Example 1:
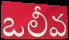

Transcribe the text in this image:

ఒలీవ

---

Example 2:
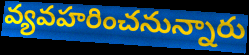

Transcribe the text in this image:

వ్యవహరించనున్నారు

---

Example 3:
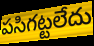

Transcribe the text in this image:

పసిగట్టలేదు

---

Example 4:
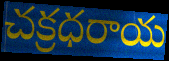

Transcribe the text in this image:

చక్రధరాయ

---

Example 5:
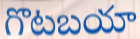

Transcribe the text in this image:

గొటబయా